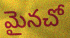
మైనచో